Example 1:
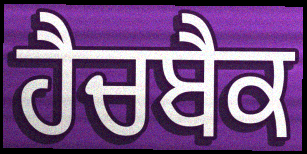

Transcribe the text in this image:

ਹੈਚਬੈਕ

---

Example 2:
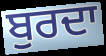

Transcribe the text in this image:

ਬੁਰਦਾ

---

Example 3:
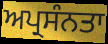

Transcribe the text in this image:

ਅਪ੍ਰਸੰਨਤਾ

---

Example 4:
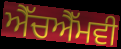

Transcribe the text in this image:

ਐੱਚਐੱਮਵੀ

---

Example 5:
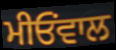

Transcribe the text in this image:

ਮੀਓਂਵਾਲ